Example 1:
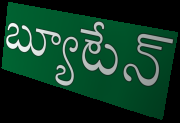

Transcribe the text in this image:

బ్యూటేన్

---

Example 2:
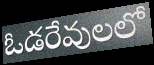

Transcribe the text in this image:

ఓడరేవులలో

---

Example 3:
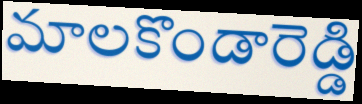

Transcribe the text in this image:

మాలకొండారెడ్డి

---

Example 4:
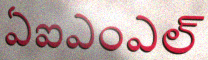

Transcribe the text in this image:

ఏఐఎంఎల్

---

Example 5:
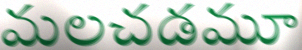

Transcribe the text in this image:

మలచడమూ